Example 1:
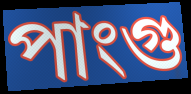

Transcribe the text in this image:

পাংগু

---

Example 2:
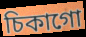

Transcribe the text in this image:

চিকাগো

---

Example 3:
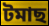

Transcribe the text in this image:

টমাছ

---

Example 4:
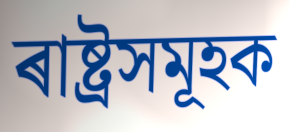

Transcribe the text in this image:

ৰাষ্ট্ৰসমূহক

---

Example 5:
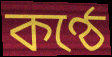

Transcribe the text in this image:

কণ্ঠে